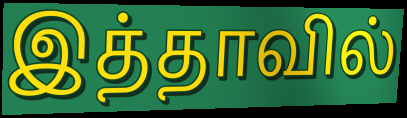
இத்தாவில்